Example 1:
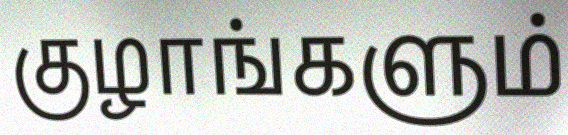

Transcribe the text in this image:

குழாங்களும்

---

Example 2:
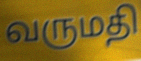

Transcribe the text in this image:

வருமதி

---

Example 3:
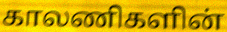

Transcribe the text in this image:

காலணிகளின்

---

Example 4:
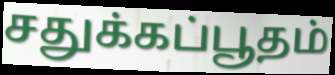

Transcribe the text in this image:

சதுக்கப்பூதம்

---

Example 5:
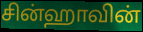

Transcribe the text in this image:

சின்ஹாவின்